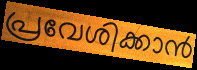
പ്രവേശിക്കാൻ